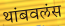
थांबवलंस